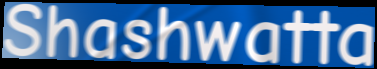
Shashwatta